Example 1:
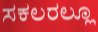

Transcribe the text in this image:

ಸಕಲರಲ್ಲೂ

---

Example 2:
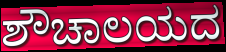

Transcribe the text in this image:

ಶೌಚಾಲಯದ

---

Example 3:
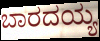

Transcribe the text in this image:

ಬಾರದಯ್ಯ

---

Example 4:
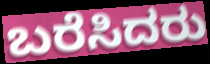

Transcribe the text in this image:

ಬರೆಸಿದರು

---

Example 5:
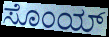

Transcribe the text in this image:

ಸೊಂಯ್